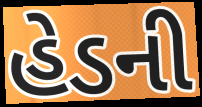
હેડની